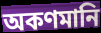
অকণমানি